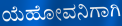
ಯೆಹೋವನಿಗಾಗಿ